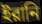
ইরানি